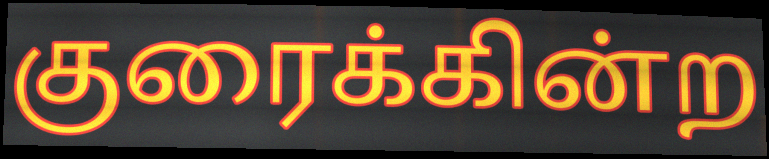
குரைக்கின்ற